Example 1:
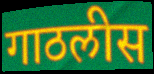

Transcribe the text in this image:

गाठलीस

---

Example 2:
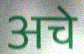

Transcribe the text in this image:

अचे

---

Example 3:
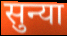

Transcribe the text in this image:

सुन्या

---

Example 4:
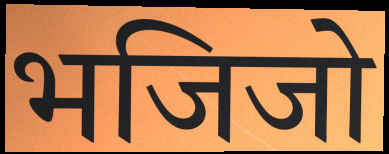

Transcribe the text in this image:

भजिजो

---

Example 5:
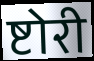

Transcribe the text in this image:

ष्टोरी